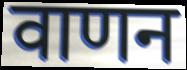
वाणन